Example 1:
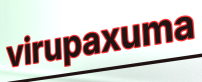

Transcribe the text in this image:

virupaxuma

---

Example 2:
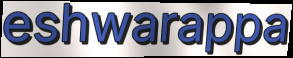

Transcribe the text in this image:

eshwarappa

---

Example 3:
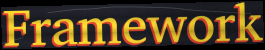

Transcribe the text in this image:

Framework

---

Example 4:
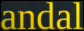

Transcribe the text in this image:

andal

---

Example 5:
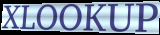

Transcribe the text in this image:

XLOOKUP